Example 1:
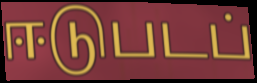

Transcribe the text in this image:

ஈடுபடப்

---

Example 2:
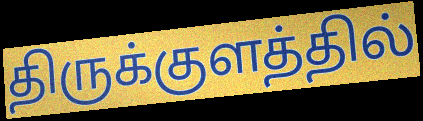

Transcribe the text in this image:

திருக்குளத்தில்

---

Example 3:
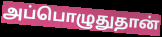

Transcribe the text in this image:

அப்பொழுதுதான்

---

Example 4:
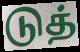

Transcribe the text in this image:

டுத்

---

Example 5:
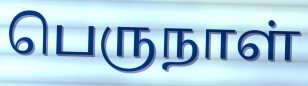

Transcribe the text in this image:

பெருநாள்